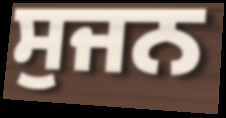
ਸੁਜਨ